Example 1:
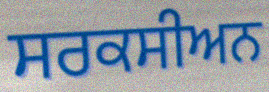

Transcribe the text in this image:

ਸਰਕਸੀਅਨ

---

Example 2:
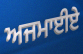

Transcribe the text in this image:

ਅਜਮਾਈਏ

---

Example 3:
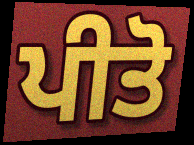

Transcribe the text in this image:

ਪੀਤੋ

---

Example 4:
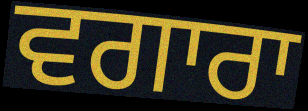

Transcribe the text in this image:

ਵਗਾਰਾ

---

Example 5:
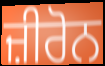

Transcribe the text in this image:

ਜ਼ੀਰੋਨ